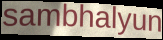
sambhalyun